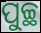
ପୁଚ୍ଛ